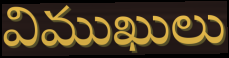
విముఖులు